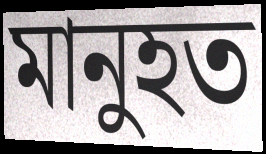
মানুহত